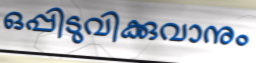
ഒപ്പിടുവിക്കുവാനും